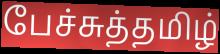
பேச்சுத்தமிழ்